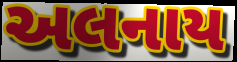
અલનાય